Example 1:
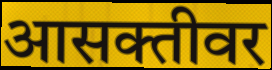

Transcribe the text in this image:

आसक्तीवर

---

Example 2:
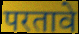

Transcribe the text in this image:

परतावे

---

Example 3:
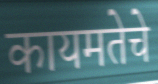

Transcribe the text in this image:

कायमतेचे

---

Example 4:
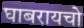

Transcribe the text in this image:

घाबरायचो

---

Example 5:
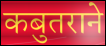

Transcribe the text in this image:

कबुतराने